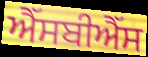
ਐੱਸਬੀਐੱਸ